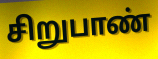
சிறுபாண்